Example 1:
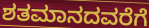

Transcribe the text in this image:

ಶತಮಾನದವರೆಗೆ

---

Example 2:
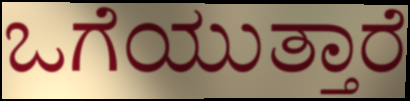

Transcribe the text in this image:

ಒಗೆಯುತ್ತಾರೆ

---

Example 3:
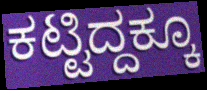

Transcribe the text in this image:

ಕಟ್ಟಿದ್ದಕ್ಕೂ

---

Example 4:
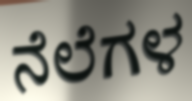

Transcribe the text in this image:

ನೆಲೆಗಳ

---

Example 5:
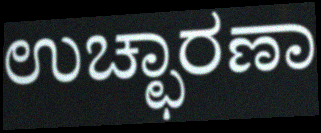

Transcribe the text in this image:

ಉಚ್ಛಾರಣಾ